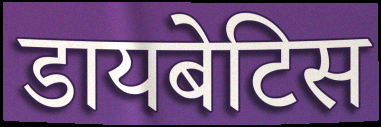
डायबेटिस